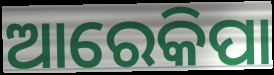
ଆରେକିପା